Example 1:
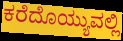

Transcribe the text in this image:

ಕರೆದೊಯ್ಯುವಲ್ಲಿ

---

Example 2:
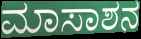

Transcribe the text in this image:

ಮಾಸಾಶನ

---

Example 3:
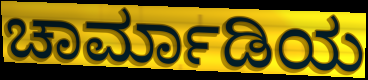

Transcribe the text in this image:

ಚಾರ್ಮಾಡಿಯ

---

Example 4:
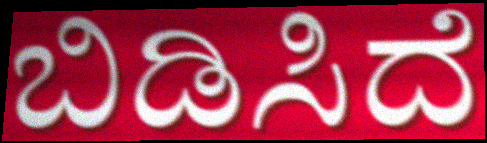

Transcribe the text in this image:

ಬಿಡಿಸಿದೆ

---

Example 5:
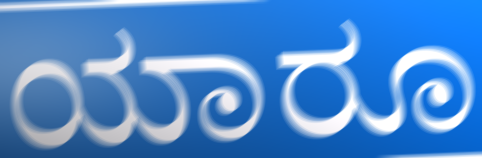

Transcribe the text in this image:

ಯಾರೂ